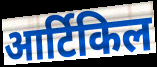
आर्टिकिल